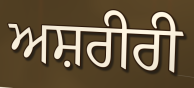
ਅਸ਼ਰੀਰੀ